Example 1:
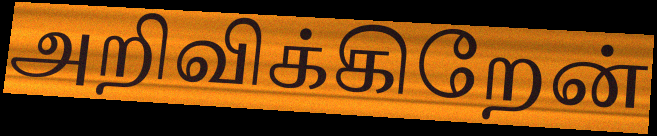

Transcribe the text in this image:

அறிவிக்கிறேன்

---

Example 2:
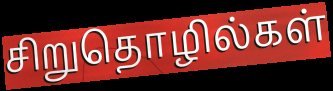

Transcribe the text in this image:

சிறுதொழில்கள்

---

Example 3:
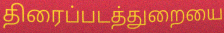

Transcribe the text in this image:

திரைப்படத்துறையை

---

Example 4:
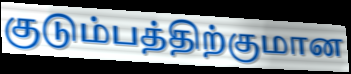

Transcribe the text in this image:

குடும்பத்திற்குமான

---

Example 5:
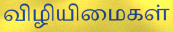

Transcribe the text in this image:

விழியிமைகள்